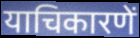
याचिकारणें